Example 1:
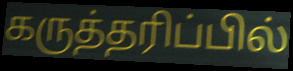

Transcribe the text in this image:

கருத்தரிப்பில்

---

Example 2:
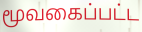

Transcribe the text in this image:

மூவகைப்பட்ட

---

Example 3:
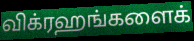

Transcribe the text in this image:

விக்ரஹங்களைக்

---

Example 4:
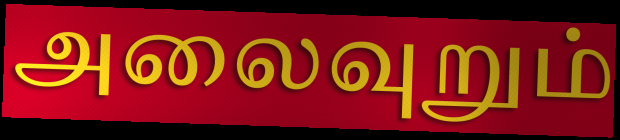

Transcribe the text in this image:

அலைவுறும்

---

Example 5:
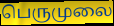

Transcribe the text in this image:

பெருமுலை